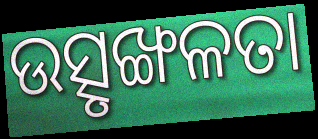
ଉତ୍ସୃଙ୍ଖଳତା